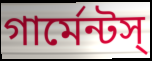
গার্মেন্টস্